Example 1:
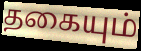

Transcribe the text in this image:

தகையும்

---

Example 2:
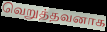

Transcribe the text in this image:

வெறுத்தவனாக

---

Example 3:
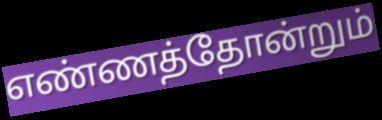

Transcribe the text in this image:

எண்ணத்தோன்றும்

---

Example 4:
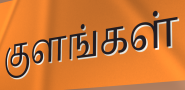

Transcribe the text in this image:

குளங்கள்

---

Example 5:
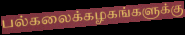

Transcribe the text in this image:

பல்கலைக்கழகங்களுக்கு